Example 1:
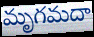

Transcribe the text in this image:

మృగమదా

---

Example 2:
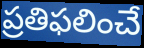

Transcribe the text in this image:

ప్రతిఫలించే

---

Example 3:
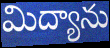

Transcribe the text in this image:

మిద్యాను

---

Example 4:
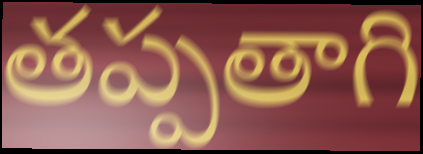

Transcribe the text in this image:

తప్పతాగి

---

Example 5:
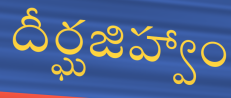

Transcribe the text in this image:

దీర్ఘజిహ్వాం